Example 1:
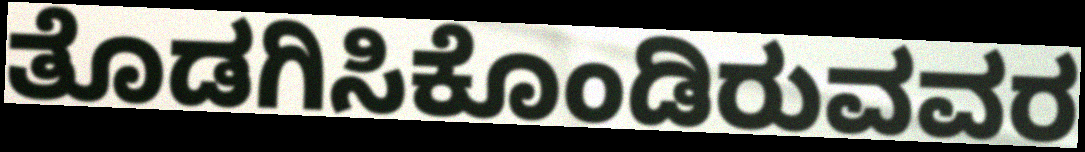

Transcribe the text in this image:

ತೊಡಗಿಸಿಕೊಂಡಿರುವವರ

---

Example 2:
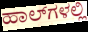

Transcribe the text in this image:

ಹಾಲ್‌ಗಳಲ್ಲಿ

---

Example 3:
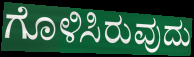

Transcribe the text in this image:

ಗೊಳಿಸಿರುವುದು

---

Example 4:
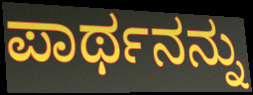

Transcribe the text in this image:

ಪಾರ್ಥನನ್ನು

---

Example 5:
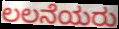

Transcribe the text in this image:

ಲಲನೆಯರು